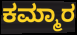
ಕಮ್ಮಾರ